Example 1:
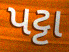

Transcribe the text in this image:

પટ્ટા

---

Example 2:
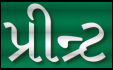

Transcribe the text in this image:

પ્રીન્ર્ટ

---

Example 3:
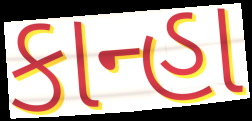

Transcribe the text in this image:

કાન્હા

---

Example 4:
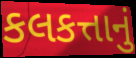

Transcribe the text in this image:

કલકત્તાનું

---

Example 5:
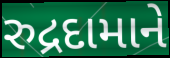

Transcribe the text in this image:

રુદ્રદામાને